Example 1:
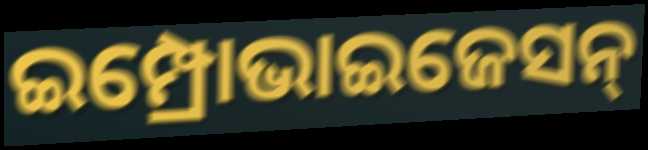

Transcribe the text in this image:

ଇମ୍ପ୍ରୋଭାଇଜେସନ୍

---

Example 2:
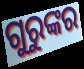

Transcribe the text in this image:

ଗୁରୁଙ୍କର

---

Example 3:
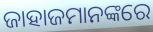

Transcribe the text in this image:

ଜାହାଜମାନଙ୍କରେ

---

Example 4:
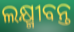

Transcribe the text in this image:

ଲକ୍ଷ୍ମୀବନ୍ତ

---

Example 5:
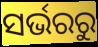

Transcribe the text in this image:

ସର୍ଭରରୁ